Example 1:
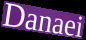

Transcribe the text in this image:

Danaei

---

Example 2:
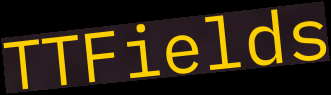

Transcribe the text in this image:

TTFields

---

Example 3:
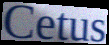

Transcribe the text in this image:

Cetus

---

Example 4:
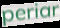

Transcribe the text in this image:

periar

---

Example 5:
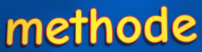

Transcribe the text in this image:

methode